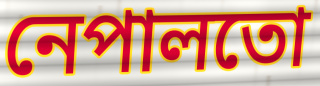
নেপালতো